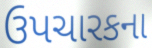
ઉપચારકના